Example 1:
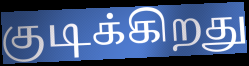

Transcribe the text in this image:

குடிக்கிறது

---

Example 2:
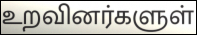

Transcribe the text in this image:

உறவினர்களுள்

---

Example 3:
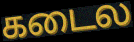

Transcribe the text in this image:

கடைல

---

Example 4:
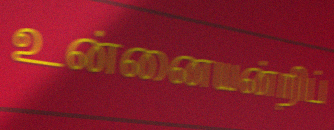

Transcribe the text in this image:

உன்னையன்றிப்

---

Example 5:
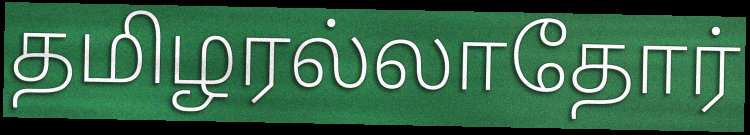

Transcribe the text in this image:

தமிழரல்லாதோர்